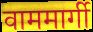
वाममार्गी